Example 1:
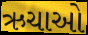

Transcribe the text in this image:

ઋચાઓ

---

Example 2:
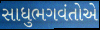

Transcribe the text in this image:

સાધુભગવંતોએ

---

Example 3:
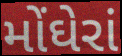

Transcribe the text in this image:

મોંઘેરાં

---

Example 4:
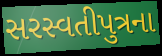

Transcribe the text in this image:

સરસ્વતીપુત્રના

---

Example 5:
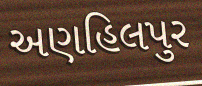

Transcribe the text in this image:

અણહિલપુર